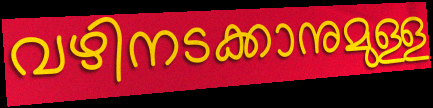
വഴിനടക്കാനുമുള്ള